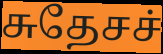
சுதேசச்